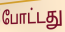
போட்டது